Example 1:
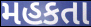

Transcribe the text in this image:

મહકતા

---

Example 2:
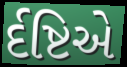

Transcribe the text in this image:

ર્દષ્ટિએ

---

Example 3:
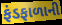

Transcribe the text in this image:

ફંડફાળાની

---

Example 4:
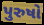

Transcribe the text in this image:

પુરુષો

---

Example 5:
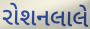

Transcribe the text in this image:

રોશનલાલે